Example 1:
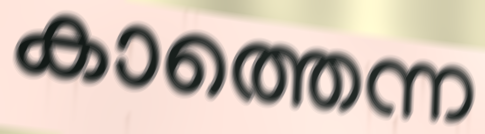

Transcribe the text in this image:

കാത്തെന്ന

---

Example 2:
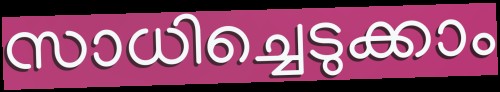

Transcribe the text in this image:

സാധിച്ചെടുക്കാം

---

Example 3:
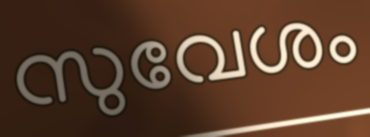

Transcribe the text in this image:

സുവേശം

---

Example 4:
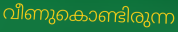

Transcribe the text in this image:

വീണുകൊണ്ടിരുന്ന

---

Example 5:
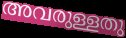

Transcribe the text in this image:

അവരുള്ളതു